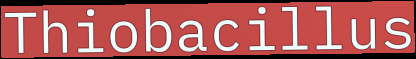
Thiobacillus